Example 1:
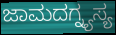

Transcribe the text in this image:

ಜಾಮದಗ್ನ್ಯಸ್ಯ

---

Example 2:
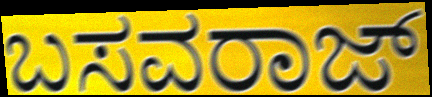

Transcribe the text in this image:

ಬಸವರಾಜ್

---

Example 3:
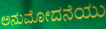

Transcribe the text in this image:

ಅನುಮೋದನೆಯು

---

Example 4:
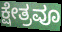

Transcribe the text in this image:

ಕ್ಷೇತ್ರವೂ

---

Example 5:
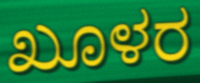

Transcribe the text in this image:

ಖೂಳರ